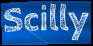
Scilly